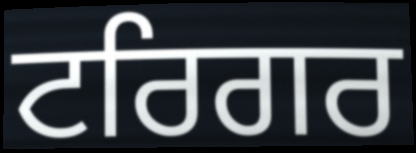
ਟਰਿਗਰ